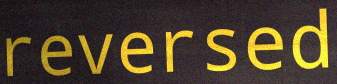
reversed